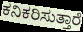
ಕನಿಕರಿಸುತ್ತಾರೆ